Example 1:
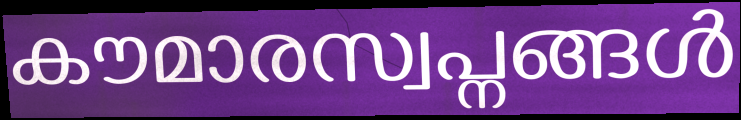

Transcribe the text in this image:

കൗമാരസ്വപ്നങ്ങൾ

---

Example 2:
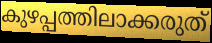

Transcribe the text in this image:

കുഴപ്പത്തിലാക്കരുത്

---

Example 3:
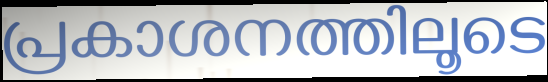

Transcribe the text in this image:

പ്രകാശനത്തിലൂടെ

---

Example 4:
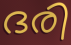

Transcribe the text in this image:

ദരി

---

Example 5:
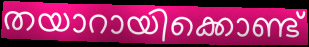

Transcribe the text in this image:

തയാറായിക്കൊണ്ട്